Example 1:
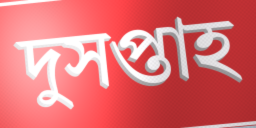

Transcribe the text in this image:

দুসপ্তাহ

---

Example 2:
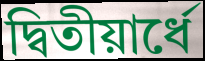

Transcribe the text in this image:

দ্বিতীয়ার্ধে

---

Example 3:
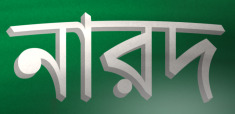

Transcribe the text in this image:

নারদ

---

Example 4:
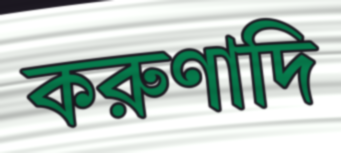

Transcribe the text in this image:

করুণাদি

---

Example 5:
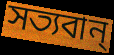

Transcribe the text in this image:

সত্যবান্